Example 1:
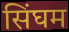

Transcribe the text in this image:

सिंघम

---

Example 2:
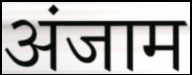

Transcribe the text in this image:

अंजाम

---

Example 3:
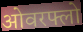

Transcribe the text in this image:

ओवरफ्लो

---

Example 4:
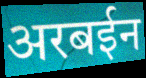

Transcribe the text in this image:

अरबईन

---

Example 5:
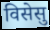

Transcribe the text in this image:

विसेसु